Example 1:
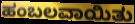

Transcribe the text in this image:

ಹಂಬಲವಾಯಿತು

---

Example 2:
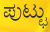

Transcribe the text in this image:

ಪುಟ್ಟು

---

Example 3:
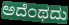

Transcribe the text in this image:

ಅದೆಂಥದು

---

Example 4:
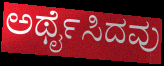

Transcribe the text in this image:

ಅರ್ಥೈಸಿದವು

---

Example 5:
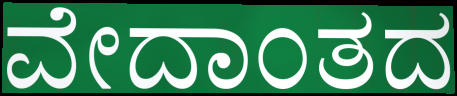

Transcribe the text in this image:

ವೇದಾಂತದ